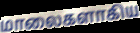
மாலைகளாகிய